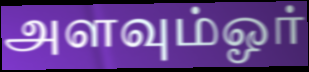
அளவும்ஓர்